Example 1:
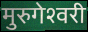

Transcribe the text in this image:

मुरुगेश्वरी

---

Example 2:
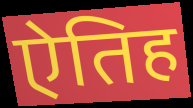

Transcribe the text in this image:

ऐतिह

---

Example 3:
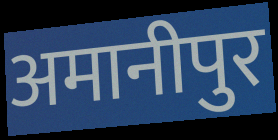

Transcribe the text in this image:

अमानीपुर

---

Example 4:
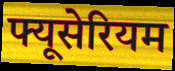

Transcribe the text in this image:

फ्यूसेरियम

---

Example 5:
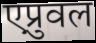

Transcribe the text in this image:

एप्रुवल